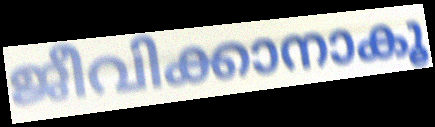
ജീവിക്കാനാകൂ